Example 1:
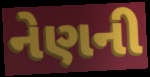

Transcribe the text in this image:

નેણની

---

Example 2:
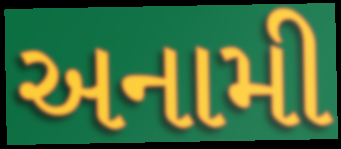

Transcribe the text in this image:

અનામી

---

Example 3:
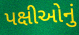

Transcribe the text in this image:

પક્ષીઓનું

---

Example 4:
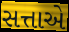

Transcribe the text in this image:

સત્તાએ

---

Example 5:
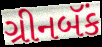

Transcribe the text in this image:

ગ્રીનબૅંક